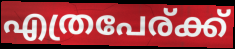
എത്രപേര്ക്ക്